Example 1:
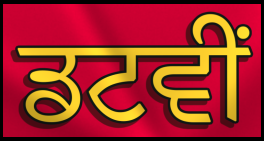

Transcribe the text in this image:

ਡਟਵੀਂ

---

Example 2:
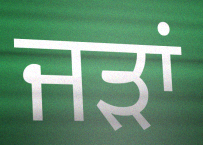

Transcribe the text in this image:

ਜੜਾਂ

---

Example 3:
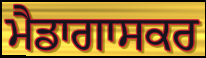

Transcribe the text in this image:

ਮੈਡਾਗਾਸਕਰ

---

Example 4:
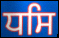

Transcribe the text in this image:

ਧਸਿ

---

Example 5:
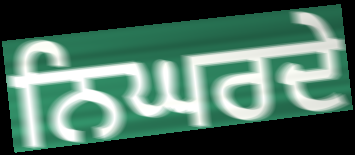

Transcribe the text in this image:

ਨਿਘਰਦੇ